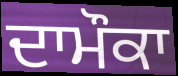
ਦਾਮੌਕਾ